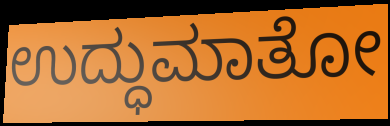
ಉದ್ಧುಮಾತೋ